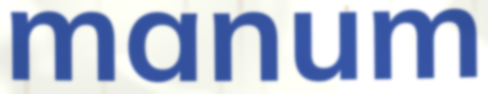
manum